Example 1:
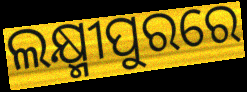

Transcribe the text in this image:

ଲକ୍ଷ୍ମୀପୁରରେ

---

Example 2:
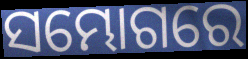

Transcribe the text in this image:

ସମ୍ଭୋଗରେ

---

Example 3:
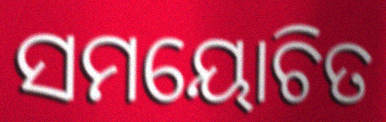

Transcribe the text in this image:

ସମୟୋଚିତ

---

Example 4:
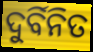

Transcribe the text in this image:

ଦୁର୍ବିନିତ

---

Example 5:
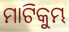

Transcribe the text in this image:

ମାଟିକୁମ୍ଭ